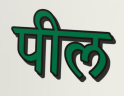
पील